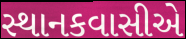
સ્થાનકવાસીએ